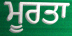
ਮੂਰਤਾ